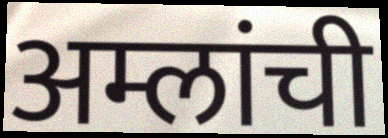
अम्‍लांची